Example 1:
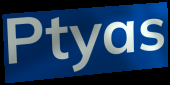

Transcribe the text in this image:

Ptyas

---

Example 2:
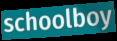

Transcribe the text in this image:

schoolboy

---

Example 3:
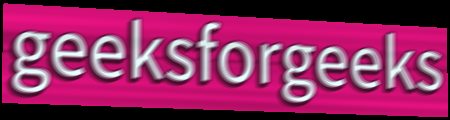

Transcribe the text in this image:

geeksforgeeks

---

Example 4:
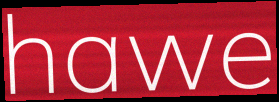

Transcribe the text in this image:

hawe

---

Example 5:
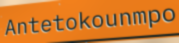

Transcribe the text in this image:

Antetokounmpo